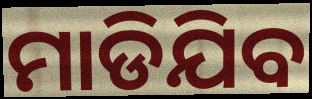
ମାଡିଯିବ